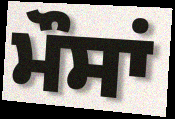
ਮੌਸਾਂ